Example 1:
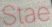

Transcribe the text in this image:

Stae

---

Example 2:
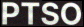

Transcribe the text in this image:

PTSO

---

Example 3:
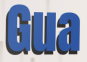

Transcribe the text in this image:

Gua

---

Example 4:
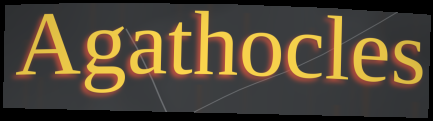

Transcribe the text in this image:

Agathocles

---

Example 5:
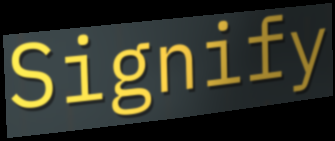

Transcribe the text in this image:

Signify